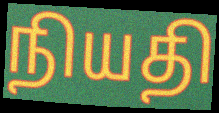
நியதி